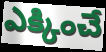
ఎక్కించే